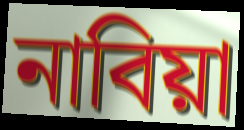
নাবিয়া